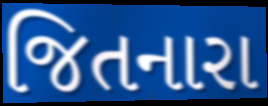
જિતનારા